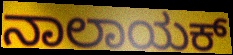
ನಾಲಾಯಕ್